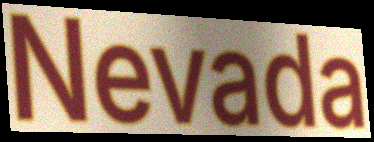
Nevada